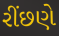
રીંછણે